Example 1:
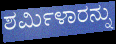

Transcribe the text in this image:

ಶರ್ಮಿಳಾರನ್ನು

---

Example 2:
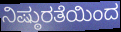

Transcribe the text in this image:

ನಿಷ್ಠುರತೆಯಿಂದ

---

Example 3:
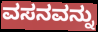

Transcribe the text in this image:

ವಸನವನ್ನು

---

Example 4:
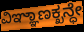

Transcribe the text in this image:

ವಿಞ್ಞಾಣಕ್ಖನ್ಧೇ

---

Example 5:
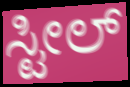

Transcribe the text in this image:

ಸ್ಟೀಲ್